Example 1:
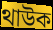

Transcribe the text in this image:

থাউক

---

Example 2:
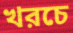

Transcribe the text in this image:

খরচে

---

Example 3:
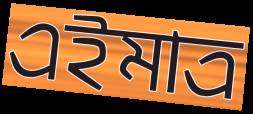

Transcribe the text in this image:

এইমাত্র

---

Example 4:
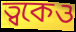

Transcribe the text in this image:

ত্বকেও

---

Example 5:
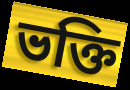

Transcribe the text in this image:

ভক্তি